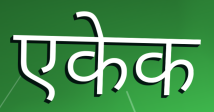
एकेक